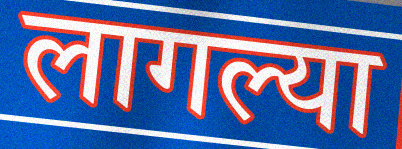
लागल्‍या